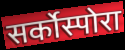
सर्कोस्पोरा